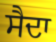
ਸੈਦਾ